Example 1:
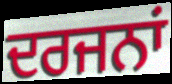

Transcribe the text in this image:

ਦਰਜਨਾਂ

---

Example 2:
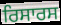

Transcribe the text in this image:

ਰਿਸਾਰਸ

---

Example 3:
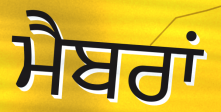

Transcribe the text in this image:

ਮੈਬਰਾਂ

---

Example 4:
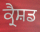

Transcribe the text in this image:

ਕ੍ਰੈਸ਼ਡ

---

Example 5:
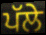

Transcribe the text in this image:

ਪੱਲੇ